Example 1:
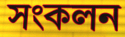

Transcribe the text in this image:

সংকলন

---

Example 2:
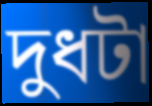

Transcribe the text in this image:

দুধটা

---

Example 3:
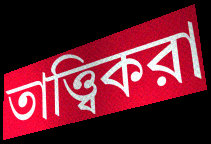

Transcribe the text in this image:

তাত্ত্বিকরা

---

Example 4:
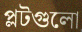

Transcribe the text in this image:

প্লটগুলো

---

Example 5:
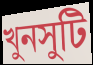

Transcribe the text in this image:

খুনসুটি